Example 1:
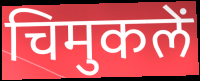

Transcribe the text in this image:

चिमुकलें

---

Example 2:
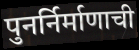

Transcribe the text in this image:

पुनर्निर्माणाची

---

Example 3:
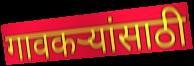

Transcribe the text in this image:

गावकऱ्यांसाठी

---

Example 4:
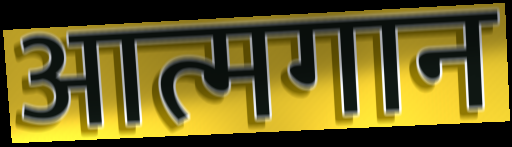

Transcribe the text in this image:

आत्मगान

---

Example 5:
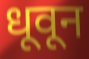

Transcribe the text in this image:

धूवून